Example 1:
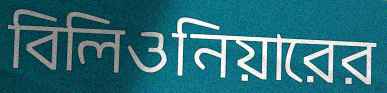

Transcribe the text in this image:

বিলিওনিয়ারের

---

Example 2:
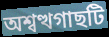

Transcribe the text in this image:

অশ্বত্থগাছটি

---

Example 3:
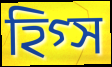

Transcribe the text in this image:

হিগ্স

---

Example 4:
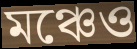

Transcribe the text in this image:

মঞ্চেও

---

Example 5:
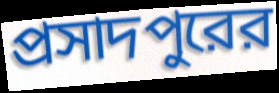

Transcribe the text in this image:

প্রসাদপুরের